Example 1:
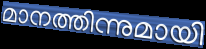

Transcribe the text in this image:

മാനത്തിന്നുമായി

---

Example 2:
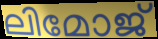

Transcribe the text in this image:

ലിമോജ്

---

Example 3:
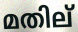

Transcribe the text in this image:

മതില്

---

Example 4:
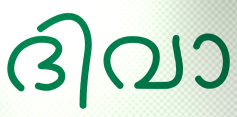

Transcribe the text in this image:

ദിവാ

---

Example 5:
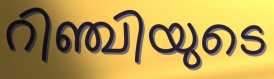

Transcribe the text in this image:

റിഞ്ചിയുടെ